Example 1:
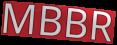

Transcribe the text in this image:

MBBR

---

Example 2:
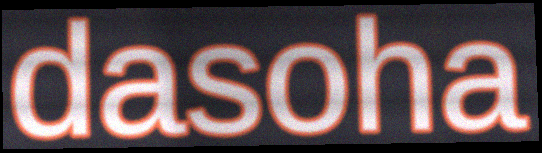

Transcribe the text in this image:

dasoha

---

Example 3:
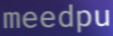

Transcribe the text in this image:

meedpu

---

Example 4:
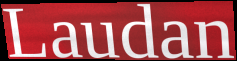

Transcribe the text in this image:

Laudan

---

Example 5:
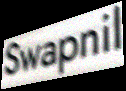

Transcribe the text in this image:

Swapnil